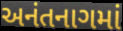
અનંતનાગમાં